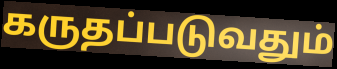
கருதப்படுவதும்